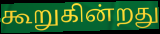
கூறுகின்றது